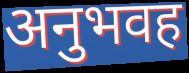
अनुभवह